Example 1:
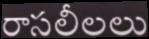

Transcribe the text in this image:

రాసలీలలు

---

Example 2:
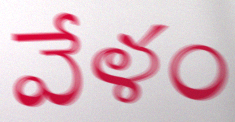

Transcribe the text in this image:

వేళం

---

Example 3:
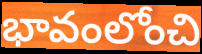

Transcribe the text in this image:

భావంలోంచి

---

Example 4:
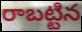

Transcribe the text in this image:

రాబట్టిన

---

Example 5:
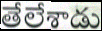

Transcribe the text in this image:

తేలేశాడు